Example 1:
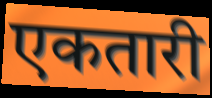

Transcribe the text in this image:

एकतारी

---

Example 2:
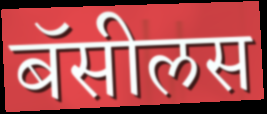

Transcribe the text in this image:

बॅसीलस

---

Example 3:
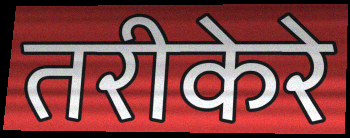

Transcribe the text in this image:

तरीकेरे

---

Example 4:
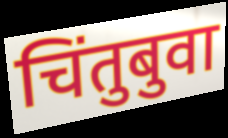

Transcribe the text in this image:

चिंतुबुवा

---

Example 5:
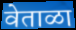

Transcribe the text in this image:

वेताळा